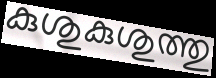
കുശുകുശുത്തു